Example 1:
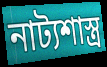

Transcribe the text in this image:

নাট্যশাস্ত্ৰ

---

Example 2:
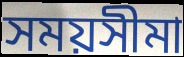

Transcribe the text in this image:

সময়সীমা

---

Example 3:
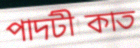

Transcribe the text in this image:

পাদটীকাত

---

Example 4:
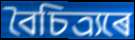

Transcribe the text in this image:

বৈচিত্ৰ্যৰে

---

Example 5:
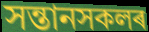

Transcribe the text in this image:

সন্তানসকলৰ